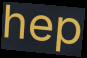
hep